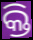
କ୍ତି